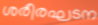
ശരീരഘടന